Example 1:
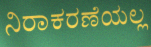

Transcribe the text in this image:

ನಿರಾಕರಣೆಯಲ್ಲ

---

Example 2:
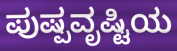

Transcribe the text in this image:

ಪುಷ್ಪವೃಷ್ಟಿಯ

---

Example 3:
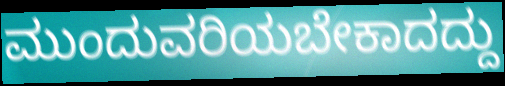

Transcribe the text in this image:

ಮುಂದುವರಿಯಬೇಕಾದದ್ದು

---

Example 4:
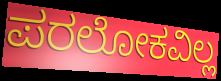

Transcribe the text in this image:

ಪರಲೋಕವಿಲ್ಲ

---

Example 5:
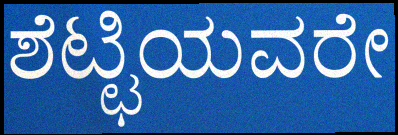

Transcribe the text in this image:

ಶೆಟ್ಟಿಯವರೇ